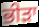
ਭੀੜਾ